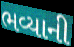
ભવ્યાની